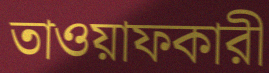
তাওয়াফকারী